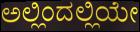
ಅಲ್ಲಿಂದಲ್ಲಿಯೇ